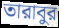
তারাবুর